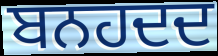
ਬਨਹਦਦ